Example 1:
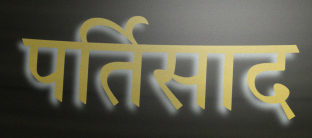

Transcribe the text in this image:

पर्तिसाद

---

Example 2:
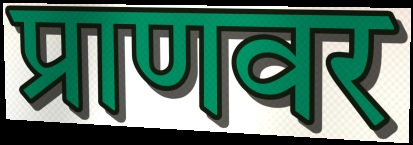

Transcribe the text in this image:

प्राणवर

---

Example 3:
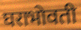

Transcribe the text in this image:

घराभोवती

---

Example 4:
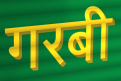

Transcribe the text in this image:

गरबी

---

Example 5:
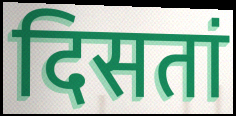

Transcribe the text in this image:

दिसतां